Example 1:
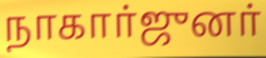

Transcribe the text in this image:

நாகார்ஜுனர்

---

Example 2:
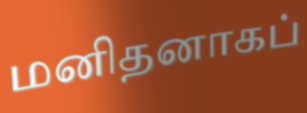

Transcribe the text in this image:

மனிதனாகப்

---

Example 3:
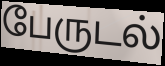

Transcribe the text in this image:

பேருடல்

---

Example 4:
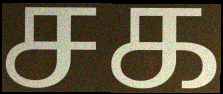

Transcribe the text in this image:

சக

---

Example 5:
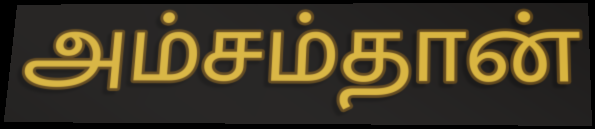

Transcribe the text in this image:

அம்சம்தான்